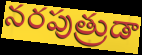
నరపుత్రుడా